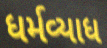
ધર્મવ્યાધ